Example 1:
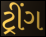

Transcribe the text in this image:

ટ્રીંગ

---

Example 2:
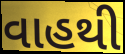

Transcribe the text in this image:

વાહથી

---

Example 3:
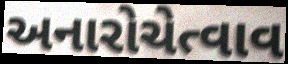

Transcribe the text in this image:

અનારોચેત્વાવ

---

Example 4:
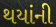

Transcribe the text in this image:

થયાંની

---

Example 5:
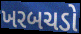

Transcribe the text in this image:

ખરબચડો